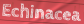
Echinacea